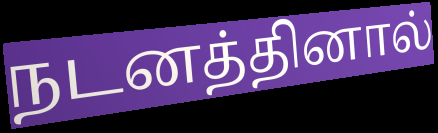
நடனத்தினால்